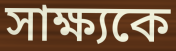
সাক্ষ্যকে